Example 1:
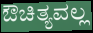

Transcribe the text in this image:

ಔಚಿತ್ಯವಲ್ಲ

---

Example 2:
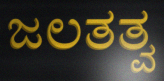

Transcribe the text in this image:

ಜಲತತ್ವ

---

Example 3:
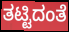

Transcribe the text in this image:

ತಟ್ಟಿದಂತೆ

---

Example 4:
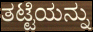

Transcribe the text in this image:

ತಟ್ಟೆಯನ್ನು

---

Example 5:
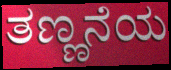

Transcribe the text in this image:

ತಣ್ಣನೆಯ